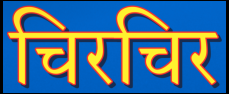
चिरचिर